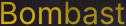
Bombast